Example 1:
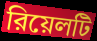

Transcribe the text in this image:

রিয়েলটি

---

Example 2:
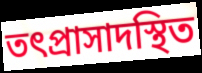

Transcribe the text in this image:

তৎপ্রাসাদস্থিত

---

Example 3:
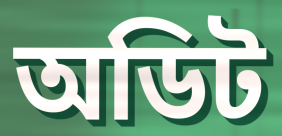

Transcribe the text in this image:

অডিট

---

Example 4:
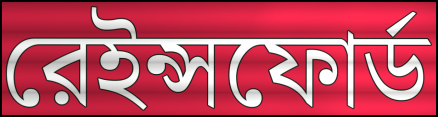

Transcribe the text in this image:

রেইন্সফোর্ড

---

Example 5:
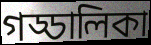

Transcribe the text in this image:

গড্ডালিকা